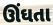
ઊંઘતા